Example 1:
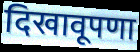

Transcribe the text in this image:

दिखावूपणा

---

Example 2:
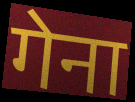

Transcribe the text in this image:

गेना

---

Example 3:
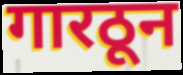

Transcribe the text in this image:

गारठून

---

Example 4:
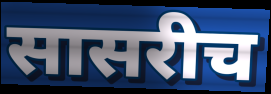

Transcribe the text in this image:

सासरीच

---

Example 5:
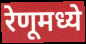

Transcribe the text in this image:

रेणूमध्ये